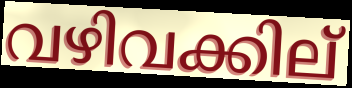
വഴിവക്കില്